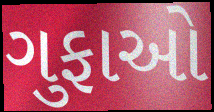
ગુફાઓ